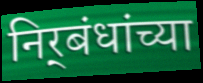
निर्बंधांच्या